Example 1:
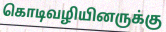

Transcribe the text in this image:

கொடிவழியினருக்கு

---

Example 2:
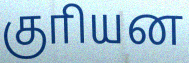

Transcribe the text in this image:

குரியன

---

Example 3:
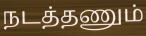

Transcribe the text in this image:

நடத்தணும்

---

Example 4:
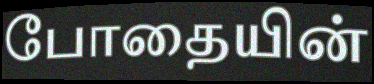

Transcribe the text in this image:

போதையின்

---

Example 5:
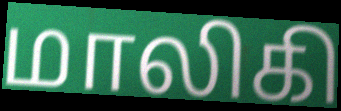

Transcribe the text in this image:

மாலிகி